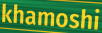
khamoshi